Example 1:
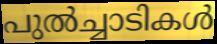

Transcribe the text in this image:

പുൽച്ചാടികൾ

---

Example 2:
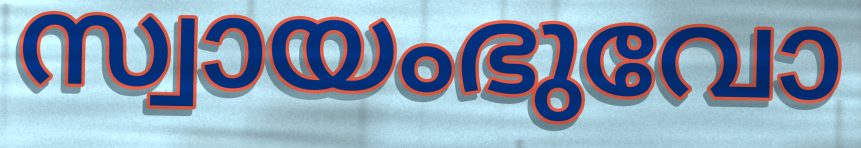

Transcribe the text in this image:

സ്വായംഭുവോ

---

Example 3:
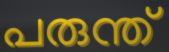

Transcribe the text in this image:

പരുന്ത്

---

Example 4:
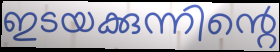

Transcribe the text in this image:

ഇടയക്കുന്നിന്റെ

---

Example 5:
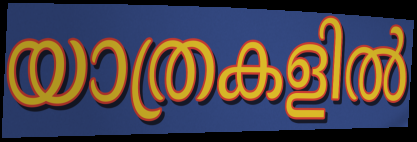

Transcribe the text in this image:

യാത്രകളിൽ